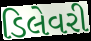
ડિલેવરી